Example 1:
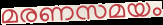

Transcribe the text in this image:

മരണസമയം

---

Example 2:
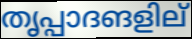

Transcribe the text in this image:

തൃപ്പാദങളില്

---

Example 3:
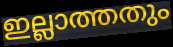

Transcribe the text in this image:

ഇല്ലാത്തതും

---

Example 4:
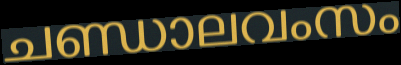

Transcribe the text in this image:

ചണ്ഡാലവംസം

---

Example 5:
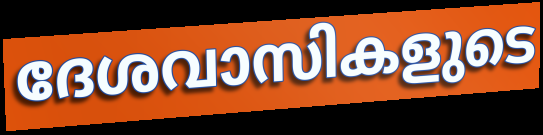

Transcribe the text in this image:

ദേശവാസികളുടെ